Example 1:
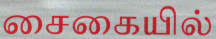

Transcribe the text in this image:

சைகையில்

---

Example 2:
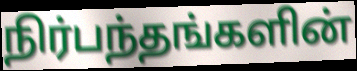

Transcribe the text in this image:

நிர்பந்தங்களின்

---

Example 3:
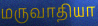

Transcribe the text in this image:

மருவாதியா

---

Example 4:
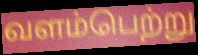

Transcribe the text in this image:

வளம்பெற்று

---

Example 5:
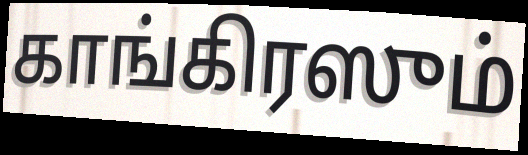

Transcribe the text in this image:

காங்கிரஸும்